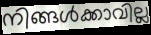
നിങ്ങൾക്കാവില്ല